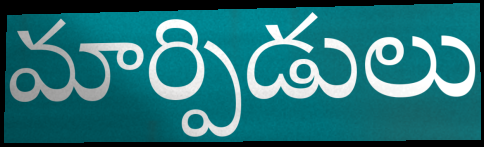
మార్పిడులు